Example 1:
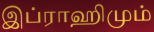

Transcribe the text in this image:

இப்ராஹிமும்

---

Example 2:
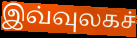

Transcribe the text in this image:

இவ்வுலகச்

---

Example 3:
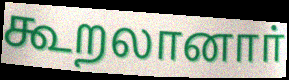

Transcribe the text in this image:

கூறலானார்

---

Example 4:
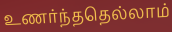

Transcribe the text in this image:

உணர்ந்ததெல்லாம்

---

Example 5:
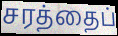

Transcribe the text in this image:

சரத்தைப்